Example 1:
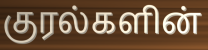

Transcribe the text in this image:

குரல்களின்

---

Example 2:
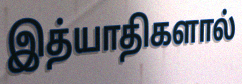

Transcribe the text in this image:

இத்யாதிகளால்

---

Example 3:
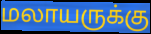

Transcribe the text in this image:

மலாயருக்கு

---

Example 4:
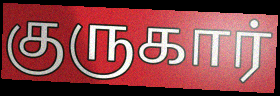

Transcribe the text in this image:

குருகார்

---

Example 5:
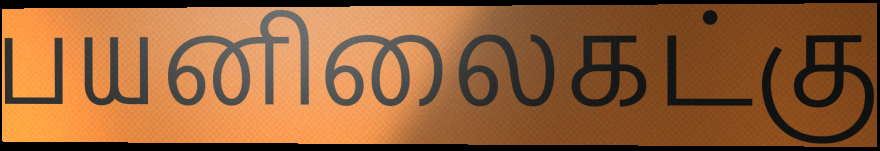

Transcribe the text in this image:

பயனிலைகட்கு